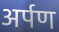
अर्पण